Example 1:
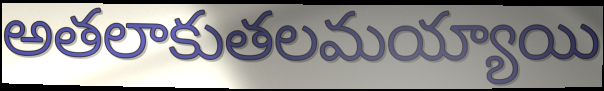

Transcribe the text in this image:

అతలాకుతలమయ్యాయి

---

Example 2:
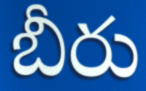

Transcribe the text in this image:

బీరు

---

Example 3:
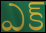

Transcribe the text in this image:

ఎక్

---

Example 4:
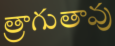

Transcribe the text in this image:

త్రాగుతావు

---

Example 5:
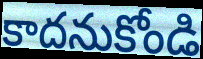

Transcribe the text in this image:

కాదనుకోండి